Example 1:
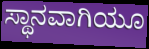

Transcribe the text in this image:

ಸ್ಥಾನವಾಗಿಯೂ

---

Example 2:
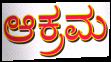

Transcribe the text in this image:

ಆಕ್ರಮ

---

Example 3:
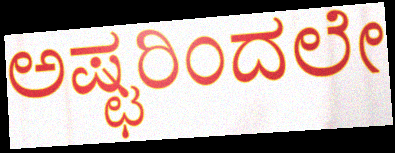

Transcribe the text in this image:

ಅಷ್ಟರಿಂದಲೇ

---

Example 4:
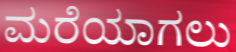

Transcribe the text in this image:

ಮರೆಯಾಗಲು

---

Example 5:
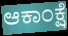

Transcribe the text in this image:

ಆಕಾಂಕ್ಷೆ